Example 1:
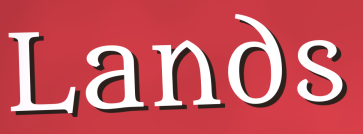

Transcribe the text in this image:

Lands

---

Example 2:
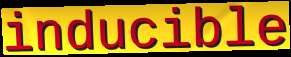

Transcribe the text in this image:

inducible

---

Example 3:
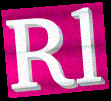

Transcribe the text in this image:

Rl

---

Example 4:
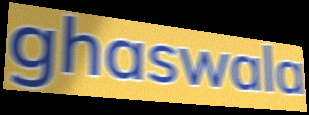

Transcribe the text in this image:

ghaswala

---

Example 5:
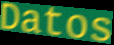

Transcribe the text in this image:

Datos